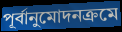
পূর্বানুমোদনক্রমে